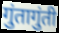
गुंतागुंती